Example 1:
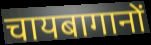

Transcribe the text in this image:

चायबागानों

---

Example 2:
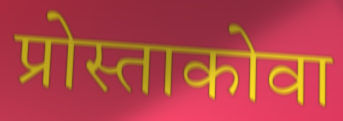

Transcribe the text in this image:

प्रोस्ताकोवा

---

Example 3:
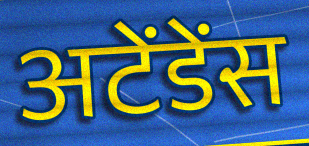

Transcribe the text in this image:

अटेंडेंस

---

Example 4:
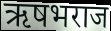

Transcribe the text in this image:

ऋषभराज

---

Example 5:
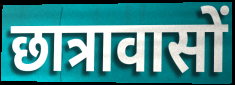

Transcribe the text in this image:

छात्रावासों